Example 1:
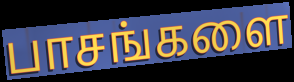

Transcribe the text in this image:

பாசங்களை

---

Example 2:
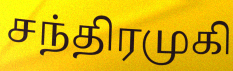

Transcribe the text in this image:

சந்திரமுகி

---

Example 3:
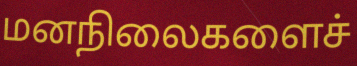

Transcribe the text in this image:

மனநிலைகளைச்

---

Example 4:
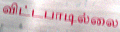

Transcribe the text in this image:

விட்டபாடில்லை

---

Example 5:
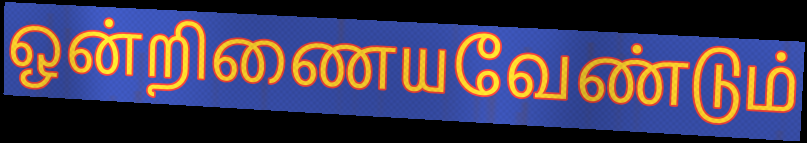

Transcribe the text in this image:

ஒன்றிணையவேண்டும்